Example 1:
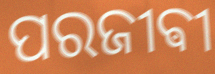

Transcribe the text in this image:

ପରଜୀଵୀ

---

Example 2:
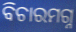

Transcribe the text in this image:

ବିଚାରମଗ୍ନ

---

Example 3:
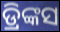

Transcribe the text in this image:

ଡ୍ରିଙ୍କସ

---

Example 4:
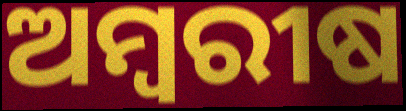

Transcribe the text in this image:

ଅମ୍ବରୀଷ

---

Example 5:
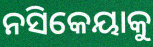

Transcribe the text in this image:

ନସିକେୟାକୁ